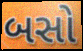
બસો